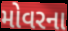
મોવરના